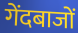
गेंदबाजों